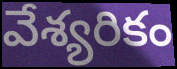
వేశ్యరికం